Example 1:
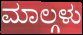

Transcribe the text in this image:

ಮಾಲ್ಗಳು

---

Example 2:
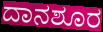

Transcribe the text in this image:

ದಾನಶೂರ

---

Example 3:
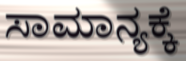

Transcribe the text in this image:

ಸಾಮಾನ್ಯಕ್ಕೆ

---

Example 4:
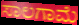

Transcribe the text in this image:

ಸಾಲಗಾಮೆ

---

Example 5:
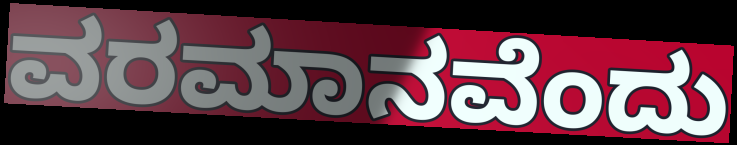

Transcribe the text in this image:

ವರಮಾನವೆಂದು